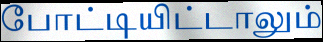
போட்டியிட்டாலும்